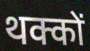
थक्कों